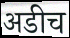
अडीच